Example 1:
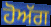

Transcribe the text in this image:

ਹੋਅੱਗ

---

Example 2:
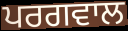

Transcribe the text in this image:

ਪਰਗਵਾਲ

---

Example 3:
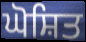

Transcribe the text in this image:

ਘੋਸ਼ਿਤ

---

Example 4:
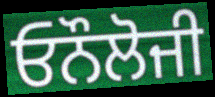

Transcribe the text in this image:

ਓਨੌਲੋਜੀ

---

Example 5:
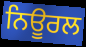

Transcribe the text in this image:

ਨਿਊਰਲ